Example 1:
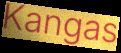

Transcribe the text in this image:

Kangas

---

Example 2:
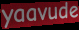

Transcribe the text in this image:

yaavude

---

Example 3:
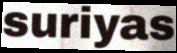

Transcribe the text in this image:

suriyas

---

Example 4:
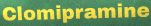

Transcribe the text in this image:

Clomipramine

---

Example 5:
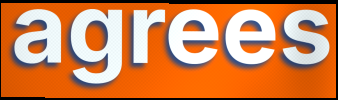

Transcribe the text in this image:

agrees